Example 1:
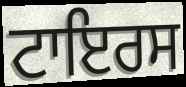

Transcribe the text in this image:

ਟਾਇਰਸ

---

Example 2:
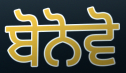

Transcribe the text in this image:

ਬੋਨੋਵੋ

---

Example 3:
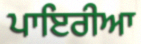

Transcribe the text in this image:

ਪਾਇਰੀਆ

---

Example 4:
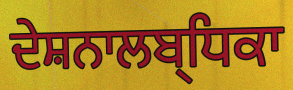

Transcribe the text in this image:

ਦੇਸ਼ਨਾਲਬ੍ਧਿਕਾ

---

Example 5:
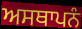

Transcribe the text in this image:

ਅਸਥਾਪਨੰ